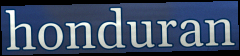
honduran